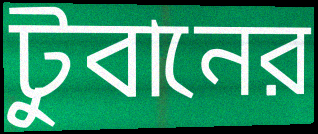
টুবানের